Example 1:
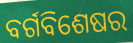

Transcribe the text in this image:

ବର୍ଗବିଶେଷର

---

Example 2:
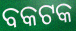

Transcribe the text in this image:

ବକଟକ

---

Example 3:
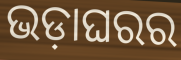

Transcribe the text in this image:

ଭଡ଼ାଘରର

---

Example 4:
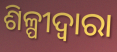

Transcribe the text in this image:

ଶିଳ୍ପୀଦ୍ୱାରା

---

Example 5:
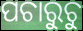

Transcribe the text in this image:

ପଚାରୁଚୁ